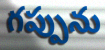
గప్పును